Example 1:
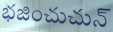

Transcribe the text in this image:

భజించుచున్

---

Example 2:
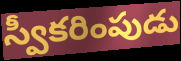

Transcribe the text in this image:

స్వీకరింపుడు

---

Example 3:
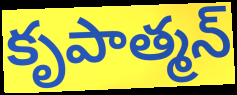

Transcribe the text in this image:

కృపాత్మన్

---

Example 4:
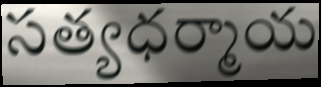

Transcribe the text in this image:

సత్యధర్మాయ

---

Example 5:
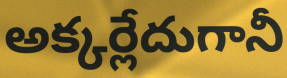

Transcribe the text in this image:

అక్కర్లేదుగానీ